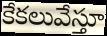
కేకలువేస్తూ